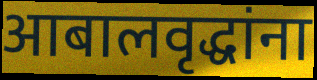
आबालवृद्धांना